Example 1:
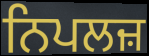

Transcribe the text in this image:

ਨਿਪਲਜ਼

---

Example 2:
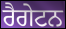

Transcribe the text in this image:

ਰੈਗੇਟਨ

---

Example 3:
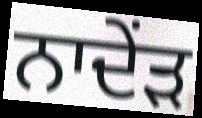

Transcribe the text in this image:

ਨਾਦੇਂੜ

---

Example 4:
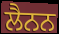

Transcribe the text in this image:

ਲੈਨਨ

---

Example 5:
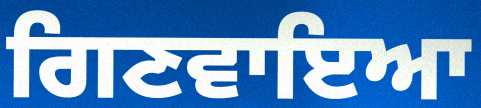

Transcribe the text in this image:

ਗਿਣਵਾਇਆ